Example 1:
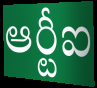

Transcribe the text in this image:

ఆర్టీఐ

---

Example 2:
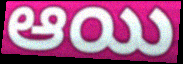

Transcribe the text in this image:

ఆయి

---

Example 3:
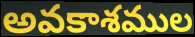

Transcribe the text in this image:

అవకాశముల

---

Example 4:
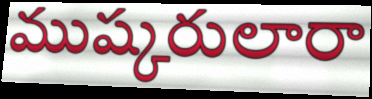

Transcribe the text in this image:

ముష్కరులారా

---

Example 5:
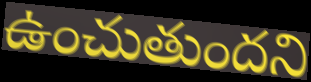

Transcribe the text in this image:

ఉంచుతుందని